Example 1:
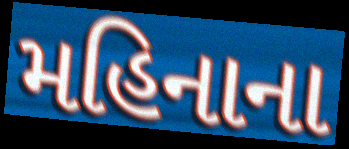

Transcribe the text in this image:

મહિનાના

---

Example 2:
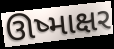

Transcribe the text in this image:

ઊષ્માક્ષર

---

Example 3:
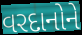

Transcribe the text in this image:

વરદાનોને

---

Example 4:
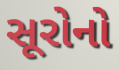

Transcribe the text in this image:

સૂરોનો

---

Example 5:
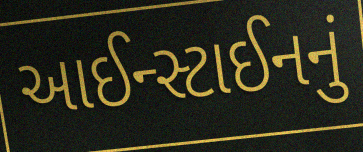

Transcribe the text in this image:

આઈન્સ્ટાઈનનું